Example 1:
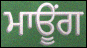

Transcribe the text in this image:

ਮਾਊਂਗ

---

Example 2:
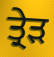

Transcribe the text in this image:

ਤ੍ਰੇੜ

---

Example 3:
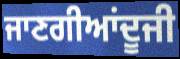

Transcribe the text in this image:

ਜਾਣਗੀਆਂਦੂਜੀ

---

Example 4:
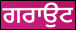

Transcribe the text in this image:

ਗਰਾਉਟ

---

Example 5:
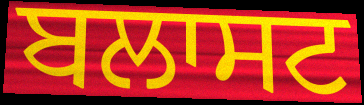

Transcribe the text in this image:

ਬਲਾਸਟ